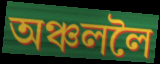
অঞ্চললৈ